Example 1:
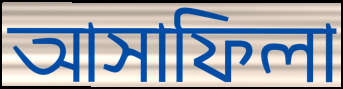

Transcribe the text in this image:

আসাফিলা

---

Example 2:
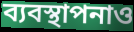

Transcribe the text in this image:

ব্যবস্থাপনাও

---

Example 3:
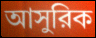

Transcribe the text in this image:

আসুরিক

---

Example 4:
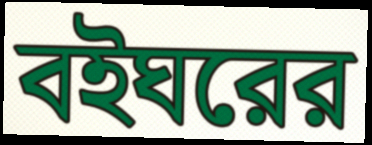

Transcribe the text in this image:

বইঘরের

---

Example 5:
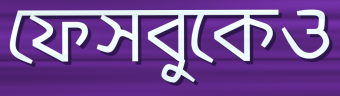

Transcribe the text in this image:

ফেসবুকেও